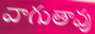
వాగుతావు